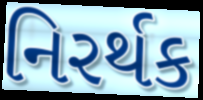
નિરર્થક